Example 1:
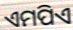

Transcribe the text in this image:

ଏମପିଏ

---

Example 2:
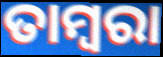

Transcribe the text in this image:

ତାମ୍ବରା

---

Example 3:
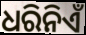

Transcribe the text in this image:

ଧରିନିଏଁ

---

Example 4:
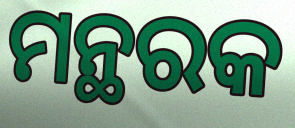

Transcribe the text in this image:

ମନ୍ଥରକ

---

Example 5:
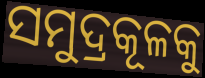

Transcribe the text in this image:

ସମୁଦ୍ରକୂଳକୁ